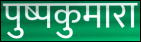
पुष्पकुमारा